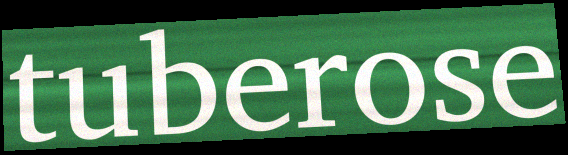
tuberose